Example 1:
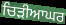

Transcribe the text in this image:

ਚਿੜੀਆਘਰ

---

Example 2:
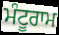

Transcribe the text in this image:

ਮੰਟੂਰਾਮ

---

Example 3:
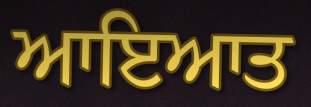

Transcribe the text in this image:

ਆਇਆਤ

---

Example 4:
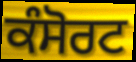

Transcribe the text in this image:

ਕੰਸੋਰਟ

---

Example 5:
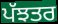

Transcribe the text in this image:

ਪੱਝਤਰ